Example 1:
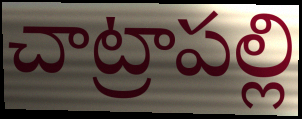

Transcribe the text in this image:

చాట్రాపల్లి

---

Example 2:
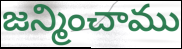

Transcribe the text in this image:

జన్మించాము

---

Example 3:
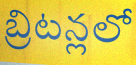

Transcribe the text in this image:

బ్రిటన్లలో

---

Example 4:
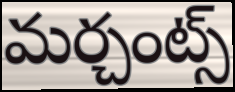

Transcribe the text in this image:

మర్చంట్స్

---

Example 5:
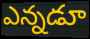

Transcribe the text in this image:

ఎన్నడూ